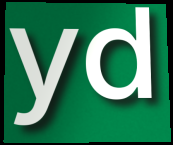
yd